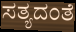
ಸತ್ಯದಂತೆ